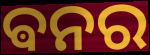
ଵନର